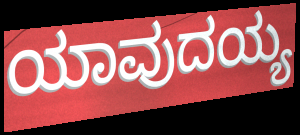
ಯಾವುದಯ್ಯ